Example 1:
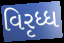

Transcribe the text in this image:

વિરૃધ્ધ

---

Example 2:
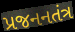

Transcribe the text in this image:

પ્રજનનતંત્ર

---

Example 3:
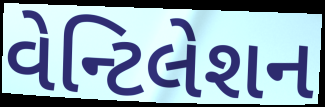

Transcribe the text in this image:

વેન્ટિલેશન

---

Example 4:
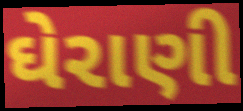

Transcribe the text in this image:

ઘેરાણી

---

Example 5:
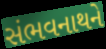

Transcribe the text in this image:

સંભવનાથને